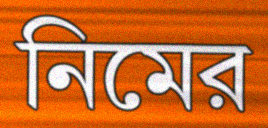
নিমের